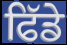
ਫਿੱਡੇ